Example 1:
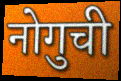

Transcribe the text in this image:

नोगुची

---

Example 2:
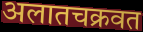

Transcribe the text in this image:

अलातचक्रवत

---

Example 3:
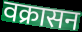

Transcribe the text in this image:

वक्रासन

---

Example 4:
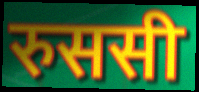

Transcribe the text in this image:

रुससी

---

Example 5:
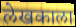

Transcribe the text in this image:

लेखकाला